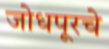
जोधपूरचे